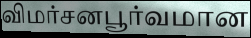
விமர்சனபூர்வமான